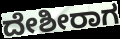
ದೇಶೀರಾಗ